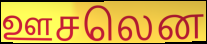
ஊசலென